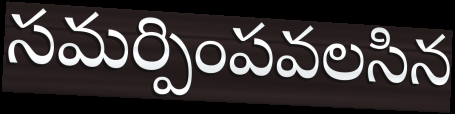
సమర్పింపవలసిన